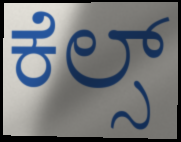
ಕೆಲ್ಸ್